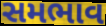
સમભાવ